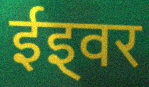
ईइ्वर